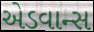
એડવાન્સ